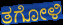
ತಗೋಳಿ